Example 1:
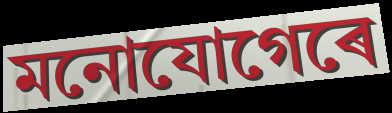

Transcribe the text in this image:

মনোযোগেৰে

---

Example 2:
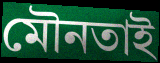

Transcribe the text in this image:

মৌনতাই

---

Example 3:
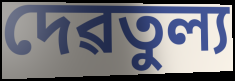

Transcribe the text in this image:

দেৱতুল্য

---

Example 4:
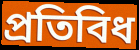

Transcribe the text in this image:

প্ৰতিবিধ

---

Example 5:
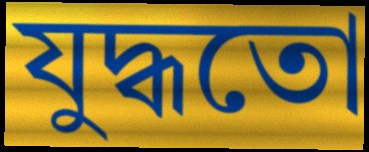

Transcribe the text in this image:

যুদ্ধতো